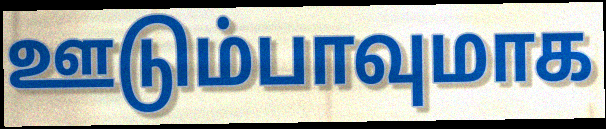
ஊடும்பாவுமாக